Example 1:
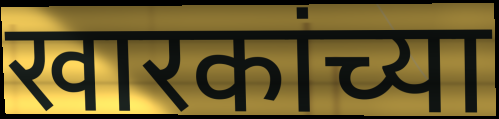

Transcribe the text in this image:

खारकांच्या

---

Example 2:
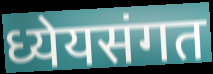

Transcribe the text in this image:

ध्येयसंगत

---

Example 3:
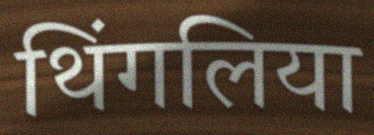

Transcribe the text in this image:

थिंगलिया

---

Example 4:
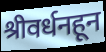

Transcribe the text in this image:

श्रीवर्धनहून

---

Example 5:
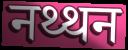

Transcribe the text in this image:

नथ्थन